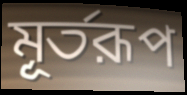
মূর্তরূপ